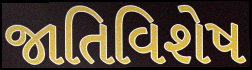
જાતિવિશેષ